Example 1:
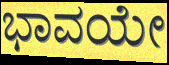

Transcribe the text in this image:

ಭಾವಯೇ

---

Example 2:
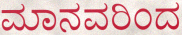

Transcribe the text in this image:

ಮಾನವರಿಂದ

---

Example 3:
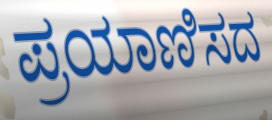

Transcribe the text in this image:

ಪ್ರಯಾಣಿಸದ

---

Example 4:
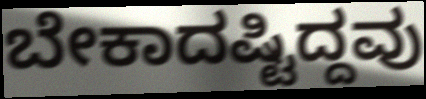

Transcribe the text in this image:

ಬೇಕಾದಷ್ಟಿದ್ದವು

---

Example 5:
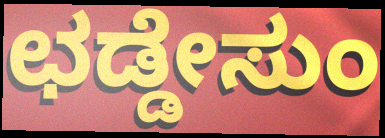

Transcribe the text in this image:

ಛಡ್ಡೇಸುಂ